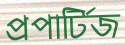
প্রপার্টিজ